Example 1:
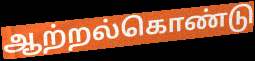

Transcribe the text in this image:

ஆற்றல்கொண்டு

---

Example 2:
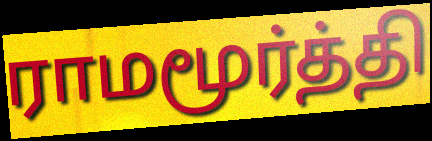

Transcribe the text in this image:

ராமமூர்த்தி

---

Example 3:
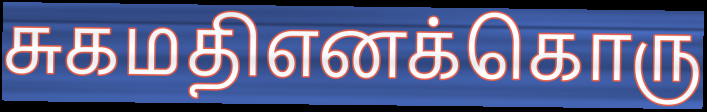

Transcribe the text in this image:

சுகமதிஎனக்கொரு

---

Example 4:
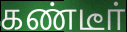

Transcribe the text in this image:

கண்டீர்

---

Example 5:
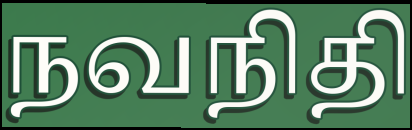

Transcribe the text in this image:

நவநிதி